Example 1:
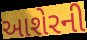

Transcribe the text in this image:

આશેરની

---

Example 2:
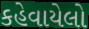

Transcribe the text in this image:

કહેવાયેલો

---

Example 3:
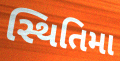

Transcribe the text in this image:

સ્થિતિમા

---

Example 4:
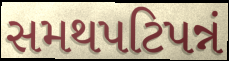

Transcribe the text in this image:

સમથપટિપન્નં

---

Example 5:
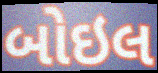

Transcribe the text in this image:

બોઇલ